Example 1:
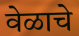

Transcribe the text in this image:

वेळाचे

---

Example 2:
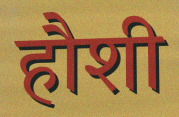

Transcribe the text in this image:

हौशी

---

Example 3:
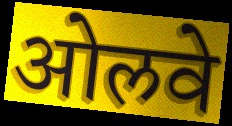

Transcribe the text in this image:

ओलवे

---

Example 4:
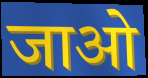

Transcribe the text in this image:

जाओ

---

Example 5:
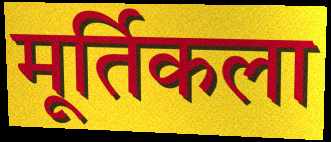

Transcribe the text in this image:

मूर्तिकला